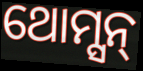
ଥୋମ୍ସନ୍